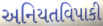
અનિયતવિપાકી